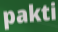
pakti